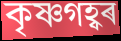
কৃষ্ণগহ্বৰ